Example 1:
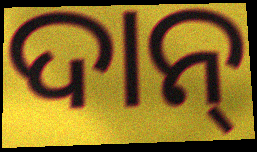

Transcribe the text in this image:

ଦାନ୍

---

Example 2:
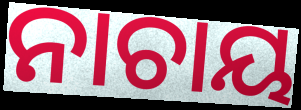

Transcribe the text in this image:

ନାଚାୟ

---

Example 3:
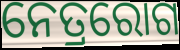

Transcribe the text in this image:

ନେତ୍ରରୋଗ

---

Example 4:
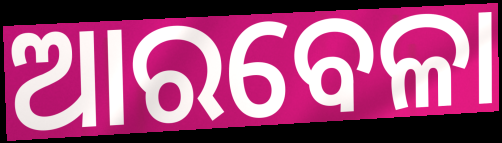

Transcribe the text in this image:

ଆରବେଳା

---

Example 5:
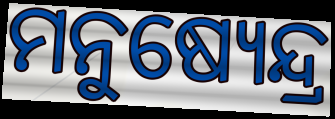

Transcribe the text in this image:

ମନୁଷ୍ୟେନ୍ଦ୍ର